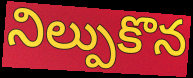
నిల్పుకొన